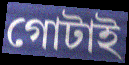
গোটাই